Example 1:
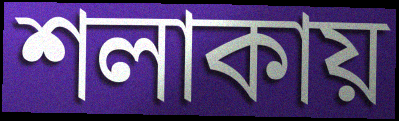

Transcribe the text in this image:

শলাকায়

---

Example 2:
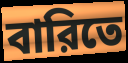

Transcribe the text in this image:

বারিতে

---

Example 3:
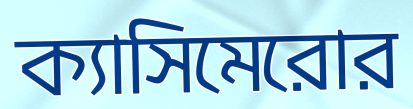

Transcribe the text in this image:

ক্যাসিমেরোর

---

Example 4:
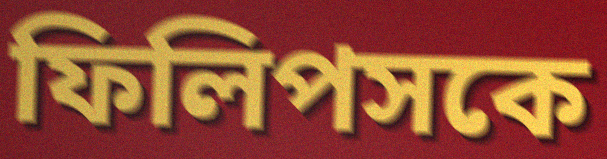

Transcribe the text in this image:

ফিলিপসকে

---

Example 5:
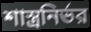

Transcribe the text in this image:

শাস্ত্রনির্ভর